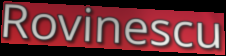
Rovinescu